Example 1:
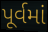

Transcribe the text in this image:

પૂર્વમાં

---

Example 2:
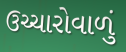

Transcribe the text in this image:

ઉચ્ચારોવાળું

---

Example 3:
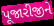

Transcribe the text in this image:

પૂજારીજીને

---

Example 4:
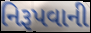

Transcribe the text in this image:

નિરૂપવાની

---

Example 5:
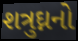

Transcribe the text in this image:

શત્રુઘ્નનો